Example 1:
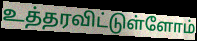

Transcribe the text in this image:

உத்தரவிட்டுள்ளோம்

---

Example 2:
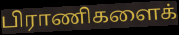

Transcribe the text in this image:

பிராணிகளைக்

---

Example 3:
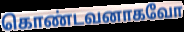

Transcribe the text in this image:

கொண்டவனாகவோ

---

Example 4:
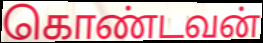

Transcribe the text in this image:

கொண்டவன்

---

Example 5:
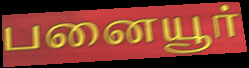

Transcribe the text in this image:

பனையூர்